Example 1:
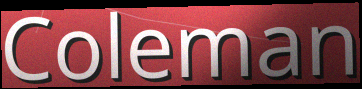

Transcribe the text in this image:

Coleman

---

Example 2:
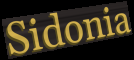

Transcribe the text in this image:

Sidonia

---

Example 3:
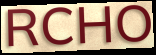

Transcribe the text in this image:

RCHO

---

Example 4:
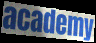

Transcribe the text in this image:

academy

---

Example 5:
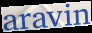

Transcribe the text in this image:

aravin